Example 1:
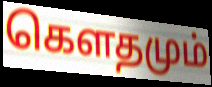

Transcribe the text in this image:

கெளதமும்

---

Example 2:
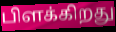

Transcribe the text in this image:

பிளக்கிறது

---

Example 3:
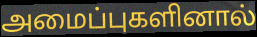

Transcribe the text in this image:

அமைப்புகளினால்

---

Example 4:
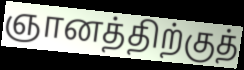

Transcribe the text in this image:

ஞானத்திற்குத்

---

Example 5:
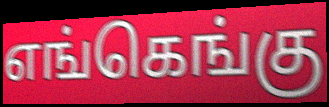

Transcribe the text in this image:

எங்கெங்கு